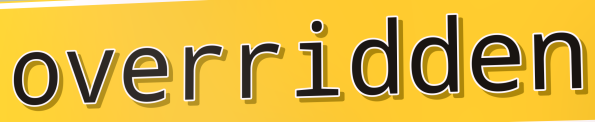
overridden